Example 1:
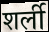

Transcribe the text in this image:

शर्ली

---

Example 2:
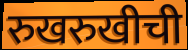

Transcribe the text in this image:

रुखरुखीची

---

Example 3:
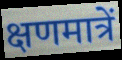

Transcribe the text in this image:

क्षणमात्रें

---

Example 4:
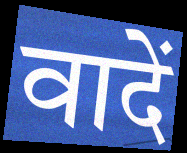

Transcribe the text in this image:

वादें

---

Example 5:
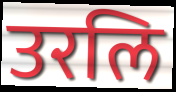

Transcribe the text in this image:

उरलि